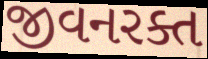
જીવનરક્ત